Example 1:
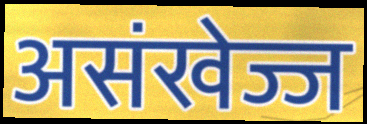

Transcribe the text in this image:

असंखेज्ज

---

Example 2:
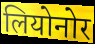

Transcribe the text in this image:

लियोनोर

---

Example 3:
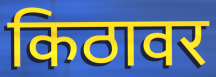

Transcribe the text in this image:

किठावर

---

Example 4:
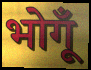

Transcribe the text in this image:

भोगूँ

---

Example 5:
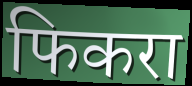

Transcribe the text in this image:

फिकरा